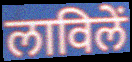
लाविलें